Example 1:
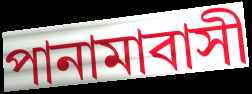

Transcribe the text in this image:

পানামাবাসী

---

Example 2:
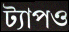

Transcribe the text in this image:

ট্যাপও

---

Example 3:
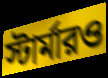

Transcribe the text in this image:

স্টার্মারও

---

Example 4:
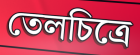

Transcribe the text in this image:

তেলচিত্রে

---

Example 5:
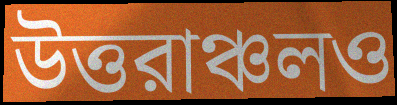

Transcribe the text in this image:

উত্তরাঞ্চলও